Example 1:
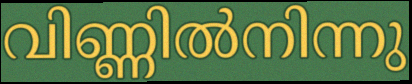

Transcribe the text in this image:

വിണ്ണിൽനിന്നു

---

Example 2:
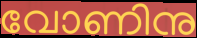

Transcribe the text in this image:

വോണിനു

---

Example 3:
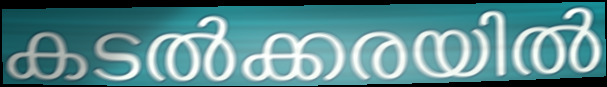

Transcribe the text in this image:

കടൽക്കരയിൽ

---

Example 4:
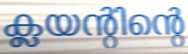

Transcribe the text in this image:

ക്ലയന്റിന്റെ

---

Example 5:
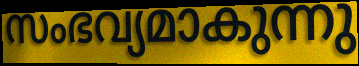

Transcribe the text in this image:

സംഭവ്യമാകുന്നു